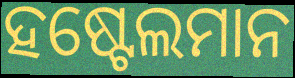
ହଷ୍ଟେଲମାନ